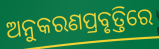
ଅନୁକରଣପ୍ରବୃତ୍ତିରେ